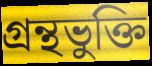
গ্রন্থভুক্তি